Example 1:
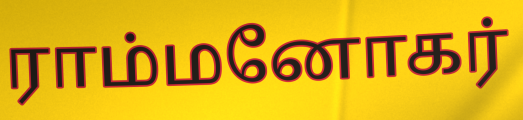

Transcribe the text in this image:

ராம்மனோகர்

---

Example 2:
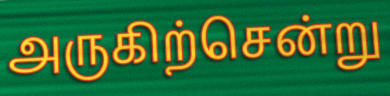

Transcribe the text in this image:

அருகிற்சென்று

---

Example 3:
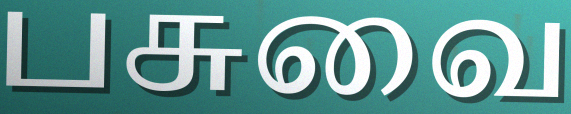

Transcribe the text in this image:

பசுவை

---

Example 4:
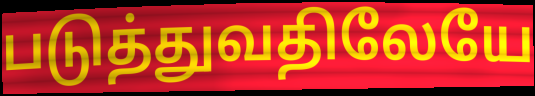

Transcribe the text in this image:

படுத்துவதிலேயே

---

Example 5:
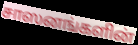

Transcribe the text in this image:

சாஸனங்களின்